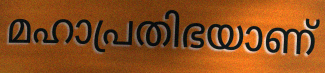
മഹാപ്രതിഭയാണ്